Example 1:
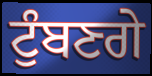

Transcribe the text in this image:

ਟੁੰਬਣਗੇ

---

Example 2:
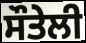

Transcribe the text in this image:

ਸੌਤੇਲੀ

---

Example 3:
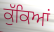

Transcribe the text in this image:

ਕੁੱਕਿਆਂ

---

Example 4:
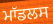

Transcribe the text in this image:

ਮਾੱਡਲਸ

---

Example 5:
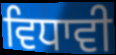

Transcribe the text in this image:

ਵਿਧਾਵੀ